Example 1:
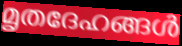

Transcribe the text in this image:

മൃതദേഹങ്ങൾ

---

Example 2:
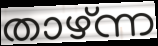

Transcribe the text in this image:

താഴ്ന്ന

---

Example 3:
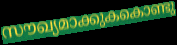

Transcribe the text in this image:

സൗഖ്യമാക്കുകകൊണ്ടു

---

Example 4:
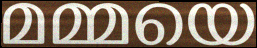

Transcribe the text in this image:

മമ്മയെ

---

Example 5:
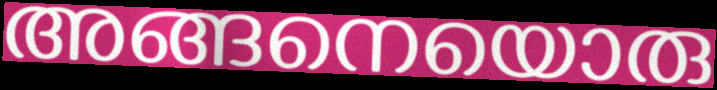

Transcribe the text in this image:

അങ്ങനെയൊരു